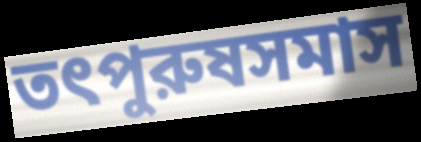
তৎপুরুষসমাস